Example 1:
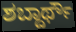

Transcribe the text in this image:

ಶಬ್ದಾರ್ಥೌ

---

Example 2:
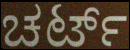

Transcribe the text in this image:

ಚರ್ಟ್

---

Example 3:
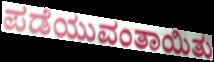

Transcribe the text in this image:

ಪಡೆಯುವಂತಾಯಿತು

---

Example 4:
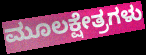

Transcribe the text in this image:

ಮೂಲಕ್ಷೇತ್ರಗಳು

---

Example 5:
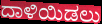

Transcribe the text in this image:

ದಾಳಿಯಿಡಲು